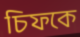
চিফকে